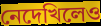
নেদেখিলেও